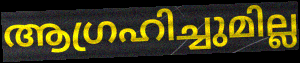
ആഗ്രഹിച്ചുമില്ല